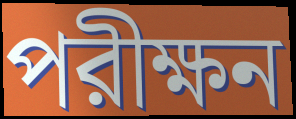
পরীক্ষন